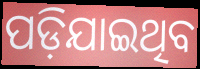
ପଡ଼ିଯାଇଥିବ